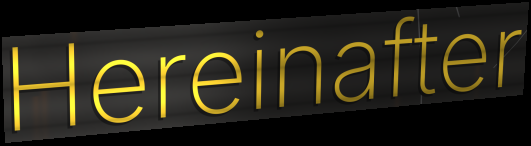
Hereinafter